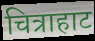
चित्राहाट